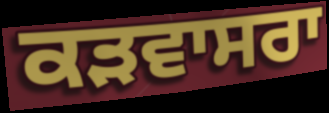
ਕੜਵਾਸਰਾ